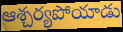
ఆశ్చర్యపోయాడు